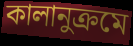
কালানুক্রমে